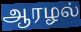
ஆரழல்